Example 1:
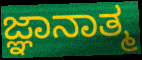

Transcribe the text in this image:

ಜ್ಞಾನಾತ್ಮ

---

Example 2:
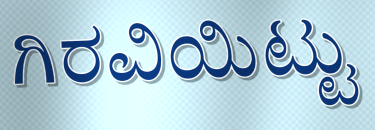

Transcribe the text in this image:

ಗಿರವಿಯಿಟ್ಟು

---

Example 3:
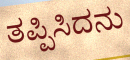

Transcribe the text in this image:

ತಪ್ಪಿಸಿದನು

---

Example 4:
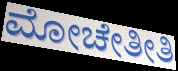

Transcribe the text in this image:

ಮೋಚೇತೀತಿ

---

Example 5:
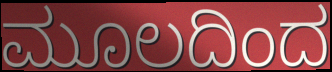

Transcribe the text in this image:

ಮೂಲದಿಂದ